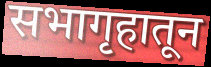
सभागृहातून